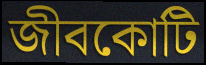
জীবকোটি